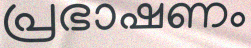
പ്രഭാഷണം